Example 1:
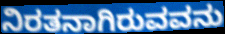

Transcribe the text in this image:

ನಿರತನಾಗಿರುವವನು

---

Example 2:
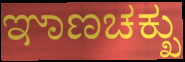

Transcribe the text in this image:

ಞಾಣಚಕ್ಖು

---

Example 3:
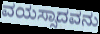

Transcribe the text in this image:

ವಯಸ್ಸಾದವನು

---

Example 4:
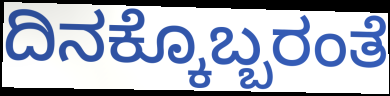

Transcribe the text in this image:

ದಿನಕ್ಕೊಬ್ಬರಂತೆ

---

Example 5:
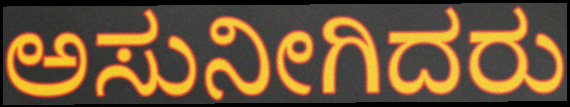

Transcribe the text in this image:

ಅಸುನೀಗಿದರು